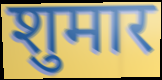
शुमार